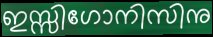
ഇസ്സിഗോനിസിനു